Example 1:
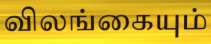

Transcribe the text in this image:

விலங்கையும்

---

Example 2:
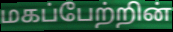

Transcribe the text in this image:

மகப்பேற்றின்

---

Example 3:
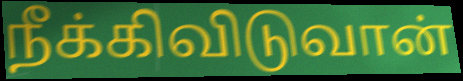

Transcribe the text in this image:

நீக்கிவிடுவான்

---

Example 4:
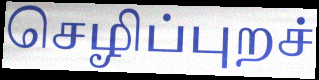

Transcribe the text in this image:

செழிப்புறச்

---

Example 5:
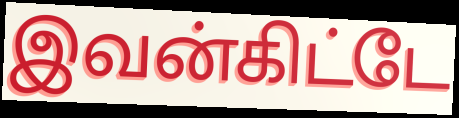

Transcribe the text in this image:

இவன்கிட்டே